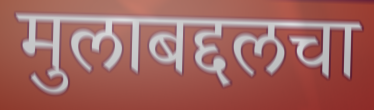
मुलाबद्दलचा